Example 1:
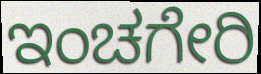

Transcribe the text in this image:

ಇಂಚಗೇರಿ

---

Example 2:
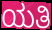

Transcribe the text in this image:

ಯತಿ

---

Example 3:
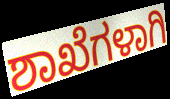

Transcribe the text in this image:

ಶಾಖೆಗಳಾಗಿ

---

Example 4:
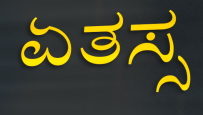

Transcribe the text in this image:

ಏತಸ್ಸ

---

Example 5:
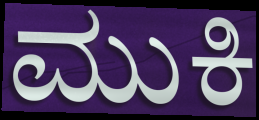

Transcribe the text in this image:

ಮುಕಿ